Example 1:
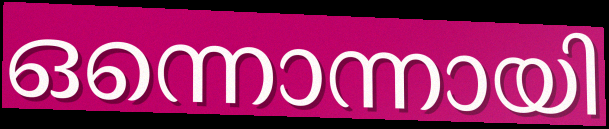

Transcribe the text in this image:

ഒന്നൊന്നായി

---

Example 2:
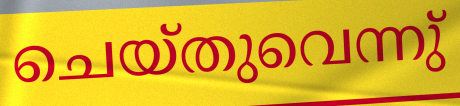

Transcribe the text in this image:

ചെയ്തുവെന്നു്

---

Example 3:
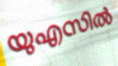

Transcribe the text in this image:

യുഎസിൽ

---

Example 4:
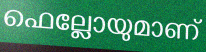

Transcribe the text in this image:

ഫെല്ലോയുമാണ്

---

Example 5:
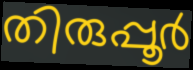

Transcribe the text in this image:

തിരുപ്പൂർ